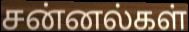
சன்னல்கள்